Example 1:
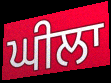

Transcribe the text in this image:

ਘੀਲਾ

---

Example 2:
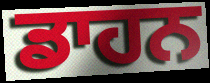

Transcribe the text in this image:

ਡਾਹਨ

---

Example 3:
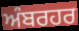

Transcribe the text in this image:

ਅੰਬਰਹਰ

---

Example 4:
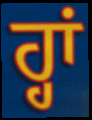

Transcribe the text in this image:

ਹ੍ਹਾਂ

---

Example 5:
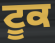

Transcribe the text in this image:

ਟੂਕ